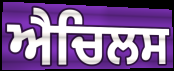
ਐਚਿਲਸ